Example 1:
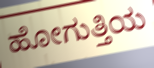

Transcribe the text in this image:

ಹೋಗುತ್ತಿಯ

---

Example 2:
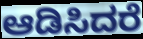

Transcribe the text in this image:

ಆಡಿಸಿದರೆ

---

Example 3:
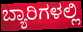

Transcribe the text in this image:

ಬ್ಯಾರಿಗಳಲ್ಲಿ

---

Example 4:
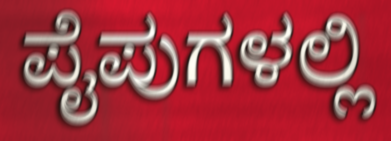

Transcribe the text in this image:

ಪೈಪುಗಳಲ್ಲಿ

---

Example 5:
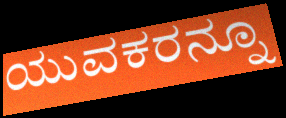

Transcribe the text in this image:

ಯುವಕರನ್ನೂ